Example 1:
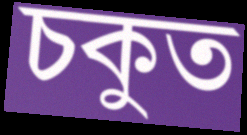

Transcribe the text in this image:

চকুত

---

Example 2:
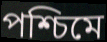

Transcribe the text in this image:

পশ্চিমে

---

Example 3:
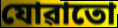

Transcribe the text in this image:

যোৱাতো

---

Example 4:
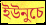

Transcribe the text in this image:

ইউনুচে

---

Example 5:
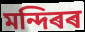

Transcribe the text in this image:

মন্দিৰৰ